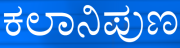
ಕಲಾನಿಪುಣ